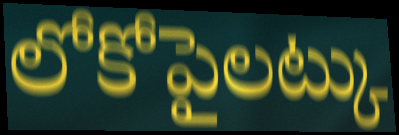
లోకోపైలట్కు